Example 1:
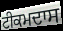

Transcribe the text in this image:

ਟੀਕਮਦਾਸ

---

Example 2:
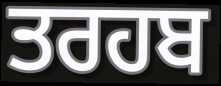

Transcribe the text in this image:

ਤਰਹਬ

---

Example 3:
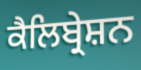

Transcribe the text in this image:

ਕੈਲਿਬ੍ਰੇਸ਼ਨ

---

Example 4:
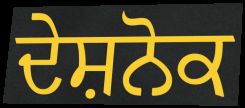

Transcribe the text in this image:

ਦੇਸ਼ਨੋਕ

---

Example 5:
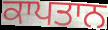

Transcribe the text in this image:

ਕਾਪਤਾਨ